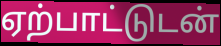
ஏற்பாட்டுடன்